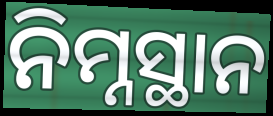
ନିମ୍ନସ୍ଥାନ